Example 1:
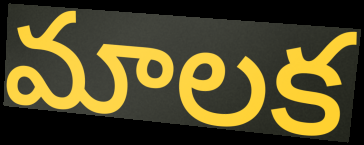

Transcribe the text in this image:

మాలక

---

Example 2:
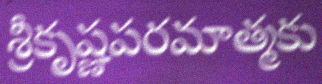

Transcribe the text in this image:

శ్రీకృష్ణపరమాత్మకు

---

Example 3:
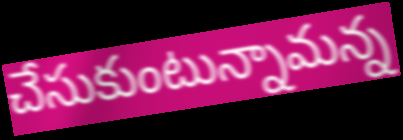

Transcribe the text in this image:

చేసుకుంటున్నామన్న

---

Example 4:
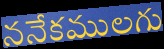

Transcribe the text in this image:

ననేకములగు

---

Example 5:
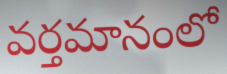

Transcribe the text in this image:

వర్తమానంలో